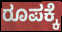
ರೂಪಕ್ಕೆ